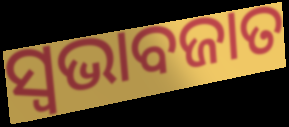
ସ୍ୱଭାବଜାତ